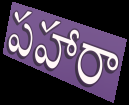
పహారా